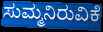
ಸುಮ್ಮನಿರುವಿಕೆ